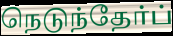
நெடுந்தேர்ப்